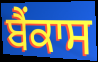
ਬੈਂਕਾਸ